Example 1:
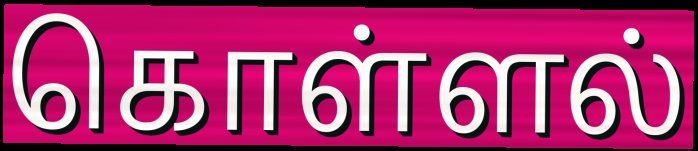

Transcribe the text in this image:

கொள்ளல்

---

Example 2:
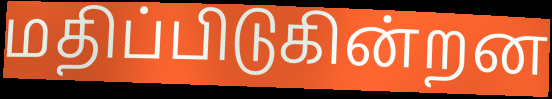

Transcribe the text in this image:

மதிப்பிடுகின்றன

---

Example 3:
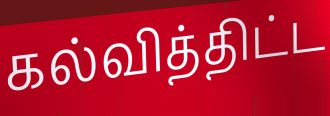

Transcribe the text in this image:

கல்வித்திட்ட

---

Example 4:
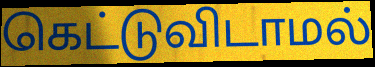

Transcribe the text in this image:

கெட்டுவிடாமல்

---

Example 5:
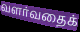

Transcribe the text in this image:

வளர்வதைக்